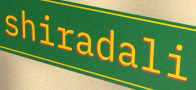
shiradali